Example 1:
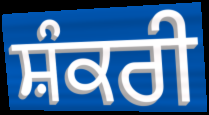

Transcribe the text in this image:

ਸ਼ੰਕਰੀ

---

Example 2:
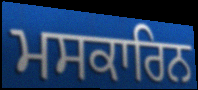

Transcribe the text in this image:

ਮਸਕਾਰਿਨ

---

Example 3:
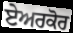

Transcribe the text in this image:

ਏਅਰਕੋਰ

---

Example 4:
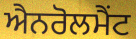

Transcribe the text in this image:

ਐਨਰੋਲਮੈਂਟ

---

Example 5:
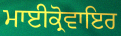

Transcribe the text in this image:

ਮਾਈਕ੍ਰੋਵਾਇਰ